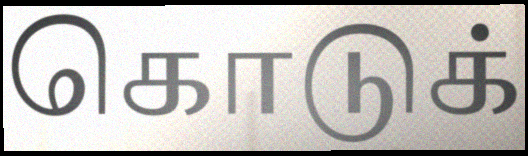
கொடுக்